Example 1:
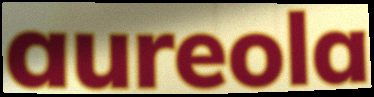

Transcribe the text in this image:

aureola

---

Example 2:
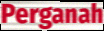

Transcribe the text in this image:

Perganah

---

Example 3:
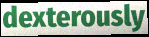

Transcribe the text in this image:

dexterously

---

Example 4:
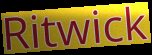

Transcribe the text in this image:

Ritwick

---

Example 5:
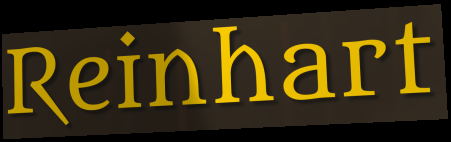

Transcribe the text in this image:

Reinhart